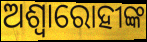
ଅଶ୍ୱାରୋହୀଙ୍କ